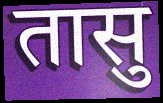
तासु